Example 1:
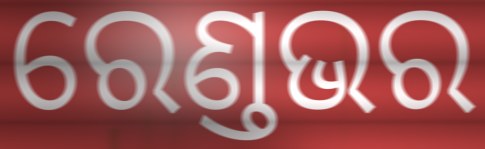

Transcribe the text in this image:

ରେଣ୍ଡଭର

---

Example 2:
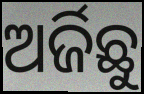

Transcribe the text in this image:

ଅର୍ଜିଛୁ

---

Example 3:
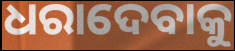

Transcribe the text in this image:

ଧରାଦେବାକୁ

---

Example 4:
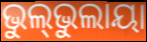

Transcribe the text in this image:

ଭୁଲ୍‌ଭୁଲାୟା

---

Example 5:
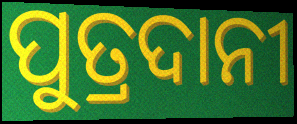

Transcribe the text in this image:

ପୁତ୍ରଦାନୀ